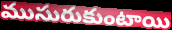
ముసురుకుంటాయి